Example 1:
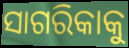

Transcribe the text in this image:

ସାଗରିକାକୁ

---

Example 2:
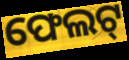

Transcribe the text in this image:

ଫେଲଟ୍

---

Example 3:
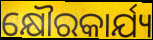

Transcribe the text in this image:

କ୍ଷୌରକାର୍ଯ୍ୟ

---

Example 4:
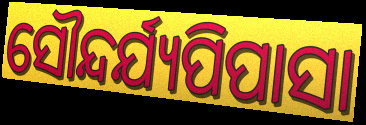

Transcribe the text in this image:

ସୌନ୍ଦର୍ଯ୍ୟପିପାସା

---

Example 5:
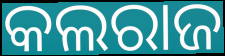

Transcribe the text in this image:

କଲରାଜ